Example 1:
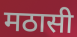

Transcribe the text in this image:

मठासी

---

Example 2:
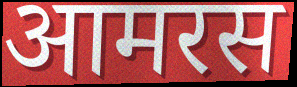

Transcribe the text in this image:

आमरस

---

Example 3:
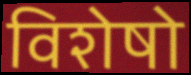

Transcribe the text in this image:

विशेषो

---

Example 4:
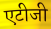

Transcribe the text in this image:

एटीजी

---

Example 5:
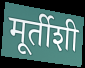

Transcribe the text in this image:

मूर्तीशी